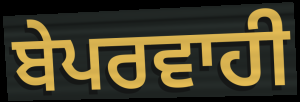
ਬੇਪਰਵਾਹੀ